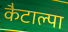
कैटाल्पा